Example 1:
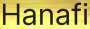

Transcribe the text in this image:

Hanafi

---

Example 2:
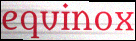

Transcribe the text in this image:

equinox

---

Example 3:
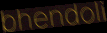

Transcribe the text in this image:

bhendoli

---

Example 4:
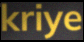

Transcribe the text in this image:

kriye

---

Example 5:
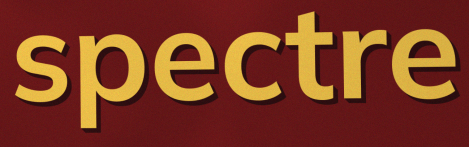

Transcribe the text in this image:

spectre